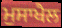
ਮੁਸਾਖੈਲ